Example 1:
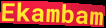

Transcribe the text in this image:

Ekambam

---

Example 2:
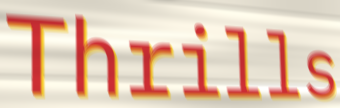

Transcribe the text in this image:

Thrills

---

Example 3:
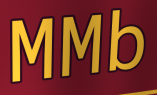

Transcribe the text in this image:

MMb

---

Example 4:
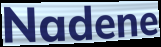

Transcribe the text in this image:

Nadene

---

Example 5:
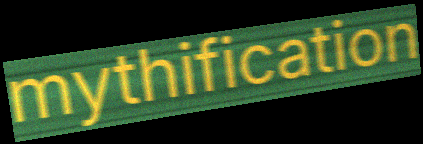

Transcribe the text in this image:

mythification